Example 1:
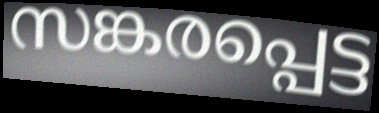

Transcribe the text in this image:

സങ്കരപ്പെട്ട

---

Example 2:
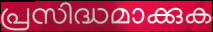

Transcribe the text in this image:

പ്രസിദ്ധമാക്കുക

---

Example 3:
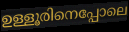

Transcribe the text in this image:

ഉള്ളൂരിനെപ്പോലെ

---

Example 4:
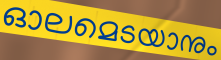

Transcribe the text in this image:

ഓലമെടയാനും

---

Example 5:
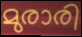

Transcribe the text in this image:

മുരാരി